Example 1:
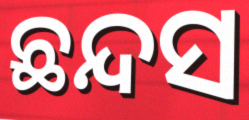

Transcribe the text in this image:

ଛନ୍ଦସ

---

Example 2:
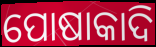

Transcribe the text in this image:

ପୋଷାକାଦି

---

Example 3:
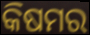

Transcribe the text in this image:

କିଷମର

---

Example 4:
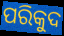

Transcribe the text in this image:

ପରିକୁଦ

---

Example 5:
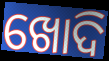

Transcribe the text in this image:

ଖୋଦି